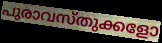
പുരാവസ്തുക്കളോ